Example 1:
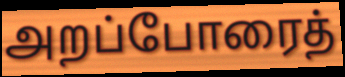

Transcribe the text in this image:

அறப்போரைத்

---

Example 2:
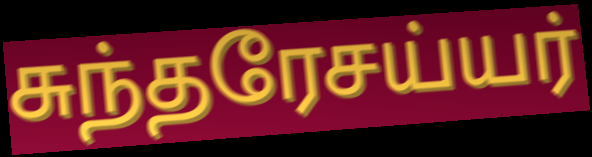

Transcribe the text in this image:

சுந்தரேசய்யர்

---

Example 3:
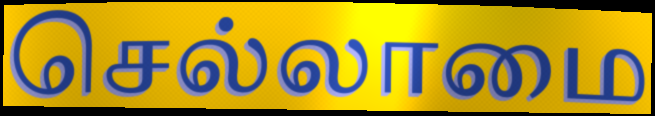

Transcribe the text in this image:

செல்லாமை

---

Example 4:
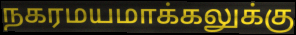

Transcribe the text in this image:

நகரமயமாக்கலுக்கு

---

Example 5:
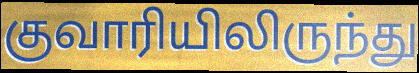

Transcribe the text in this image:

குவாரியிலிருந்து